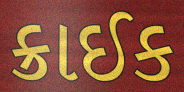
ક્રાઈક